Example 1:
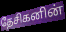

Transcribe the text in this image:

தேசிகனின்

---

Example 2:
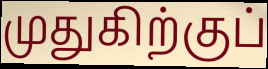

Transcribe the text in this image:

முதுகிற்குப்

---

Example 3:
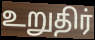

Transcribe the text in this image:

உறுதிர்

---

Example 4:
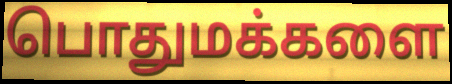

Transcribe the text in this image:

பொதுமக்களை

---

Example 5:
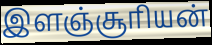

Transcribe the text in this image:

இளஞ்சூரியன்